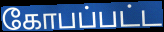
கோபப்பட்ட